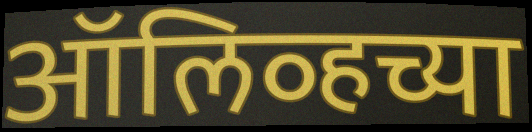
ऑलिव्हच्या